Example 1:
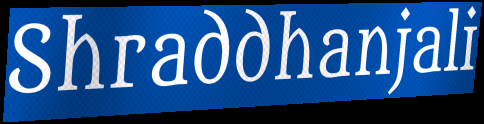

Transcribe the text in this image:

Shraddhanjali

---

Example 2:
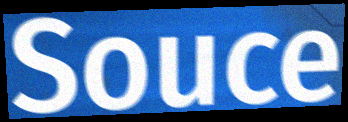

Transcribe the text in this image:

Souce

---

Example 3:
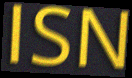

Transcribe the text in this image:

ISN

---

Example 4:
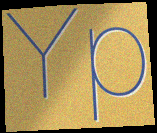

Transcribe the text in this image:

Yp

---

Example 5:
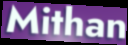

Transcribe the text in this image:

Mithan